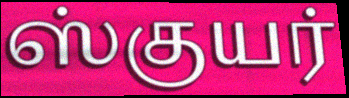
ஸ்குயர்